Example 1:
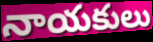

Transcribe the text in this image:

నాయకులు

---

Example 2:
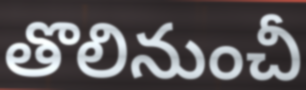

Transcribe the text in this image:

తొలినుంచీ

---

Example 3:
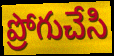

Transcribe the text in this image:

ప్రోగుచేసి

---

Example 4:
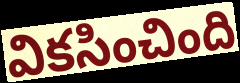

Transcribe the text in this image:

వికసించింది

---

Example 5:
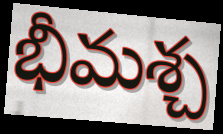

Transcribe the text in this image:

భీమశ్చ